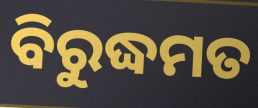
ବିରୁଦ୍ଧମତ